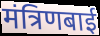
मंत्रिणबाई